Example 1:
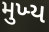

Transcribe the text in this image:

મુખ્‍ય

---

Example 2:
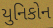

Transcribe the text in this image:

યુનિકોન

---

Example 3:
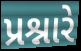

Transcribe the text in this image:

પ્રશ્નારે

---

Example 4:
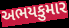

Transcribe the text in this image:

અભયકુમાર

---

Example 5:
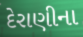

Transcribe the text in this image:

દેરાણીના